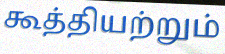
கூத்தியற்றும்